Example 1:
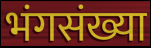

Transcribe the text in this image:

भंगसंख्या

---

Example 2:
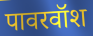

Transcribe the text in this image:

पावरवॉश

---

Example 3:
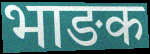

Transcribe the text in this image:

भाङक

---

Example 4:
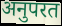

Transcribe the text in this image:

अनुपरत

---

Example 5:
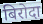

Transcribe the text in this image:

बिरोदा